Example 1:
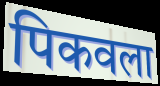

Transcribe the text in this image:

पिकवला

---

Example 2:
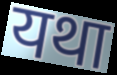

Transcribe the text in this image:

यथा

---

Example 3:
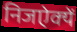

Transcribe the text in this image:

निजऐक्यें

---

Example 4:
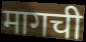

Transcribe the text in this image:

मागची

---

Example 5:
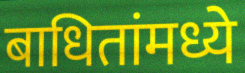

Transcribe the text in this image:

बाधितांमध्ये